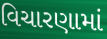
વિચારણામાં